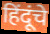
हिंदूंचे